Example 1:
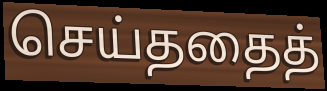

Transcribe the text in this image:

செய்ததைத்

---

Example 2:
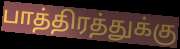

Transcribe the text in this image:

பாத்திரத்துக்கு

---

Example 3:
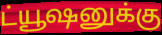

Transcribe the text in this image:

ட்யூஷனுக்கு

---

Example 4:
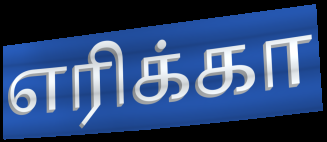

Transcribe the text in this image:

எரிக்கா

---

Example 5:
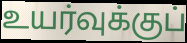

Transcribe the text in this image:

உயர்வுக்குப்